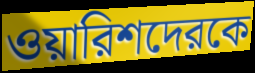
ওয়ারিশদেরকে